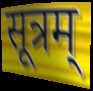
सूत्रम्